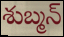
శుబ్మన్